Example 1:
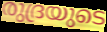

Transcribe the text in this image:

രുദ്രയുടെ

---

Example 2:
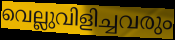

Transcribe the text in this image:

വെല്ലുവിളിച്ചവരും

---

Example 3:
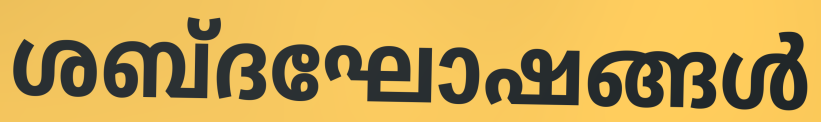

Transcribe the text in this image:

ശബ്ദഘോഷങ്ങൾ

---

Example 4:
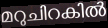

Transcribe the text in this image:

മറുചിറകിൽ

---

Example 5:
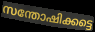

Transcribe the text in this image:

സന്തോഷിക്കട്ടെ